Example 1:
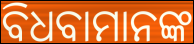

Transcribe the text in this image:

ବିଧବାମାନଙ୍କ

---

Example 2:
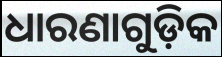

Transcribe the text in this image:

ଧାରଣାଗୁଡ଼ିକ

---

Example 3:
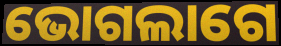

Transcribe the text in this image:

ଭୋଗଲାଗେ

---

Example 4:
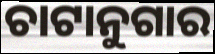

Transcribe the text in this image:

ଚାଟାନୁଗାର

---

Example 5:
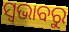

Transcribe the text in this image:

ସ୍ଵଭାବରୁ